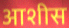
आशीस